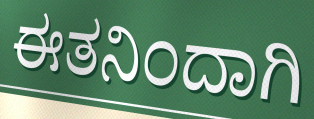
ಈತನಿಂದಾಗಿ